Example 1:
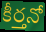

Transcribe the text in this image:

కీర్తనో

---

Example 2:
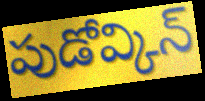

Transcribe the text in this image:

పుడోవ్కిన్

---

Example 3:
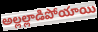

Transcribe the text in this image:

అల్లల్లాడిపోయాయి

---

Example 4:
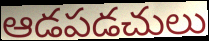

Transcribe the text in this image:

ఆడపడచులు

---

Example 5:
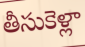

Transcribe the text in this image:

తీసుకెళ్లా